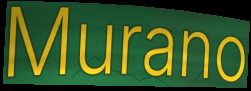
Murano